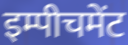
इम्पीचमेंट